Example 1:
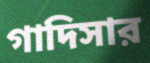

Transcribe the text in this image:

গাদিসার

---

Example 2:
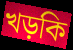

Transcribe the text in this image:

খড়কি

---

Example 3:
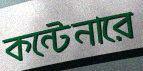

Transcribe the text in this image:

কন্টেনারে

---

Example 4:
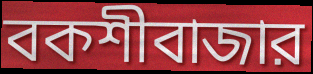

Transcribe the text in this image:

বকশীবাজার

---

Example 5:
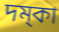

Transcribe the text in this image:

দম্‌কা